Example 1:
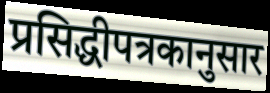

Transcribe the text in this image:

प्रसिद्धीपत्रकानुसार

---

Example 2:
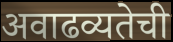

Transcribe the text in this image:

अवाढव्यतेची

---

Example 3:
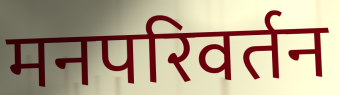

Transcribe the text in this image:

मनपरिवर्तन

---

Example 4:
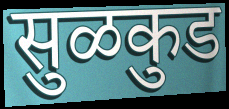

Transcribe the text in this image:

सुळकुड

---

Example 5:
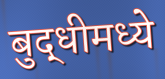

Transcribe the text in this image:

बुद्धीमध्ये